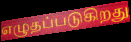
எழுதப்படுகிறது